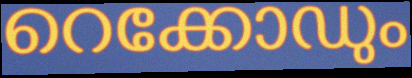
റെക്കോഡും